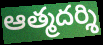
ఆత్మదర్శి